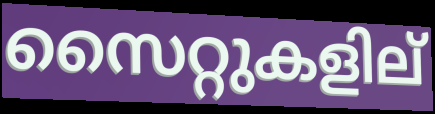
സൈറ്റുകളില്